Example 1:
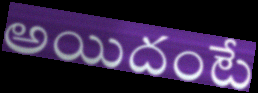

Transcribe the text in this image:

అయిదంటే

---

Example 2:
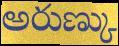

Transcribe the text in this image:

అరుణ్కు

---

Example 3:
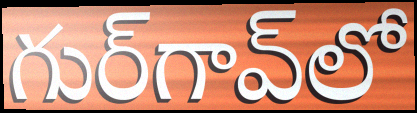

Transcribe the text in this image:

గుర్‌గావ్‌లో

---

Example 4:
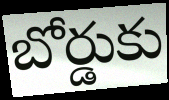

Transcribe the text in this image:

బోర్డుకు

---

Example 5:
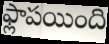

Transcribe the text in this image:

ఫ్లాపయింది